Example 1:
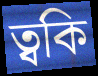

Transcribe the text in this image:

ত্বকি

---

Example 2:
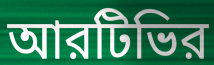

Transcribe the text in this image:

আরটিভির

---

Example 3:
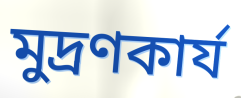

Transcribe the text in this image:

মুদ্রণকার্য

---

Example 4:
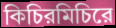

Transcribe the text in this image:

কিচিরমিচিরে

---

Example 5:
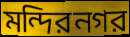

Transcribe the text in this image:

মন্দিরনগর